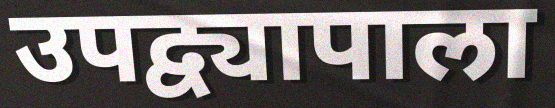
उपद्व्यापाला